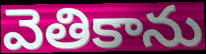
వెతికాను